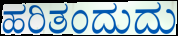
ಹರಿತಂದುದು